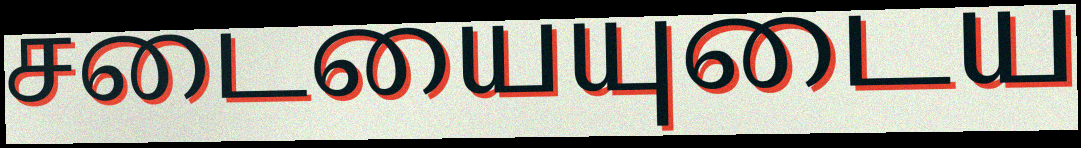
சடையையுடைய